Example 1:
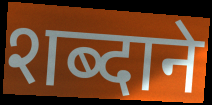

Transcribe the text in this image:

शब्दाने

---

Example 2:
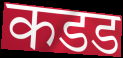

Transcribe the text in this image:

कडड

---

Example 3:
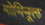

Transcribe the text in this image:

मोमिनूल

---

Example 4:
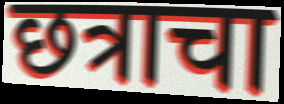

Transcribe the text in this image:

छत्राचा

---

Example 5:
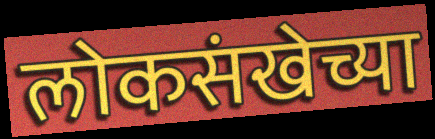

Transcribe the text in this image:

लोकसंखेच्या